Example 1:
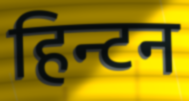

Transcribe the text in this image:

हिन्टन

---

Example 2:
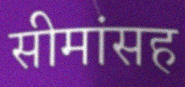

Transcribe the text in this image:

सीमांसह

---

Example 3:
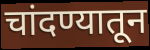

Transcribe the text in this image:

चांदण्यातून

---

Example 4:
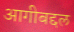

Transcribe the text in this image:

आगीबद्दल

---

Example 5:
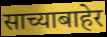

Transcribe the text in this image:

साच्याबाहेर